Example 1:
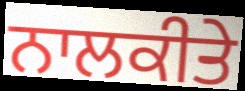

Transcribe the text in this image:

ਨਾਲਕੀਤੇ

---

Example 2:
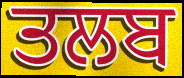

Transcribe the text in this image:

ਤਲਬ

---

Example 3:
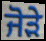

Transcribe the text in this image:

ਜੋੜੇ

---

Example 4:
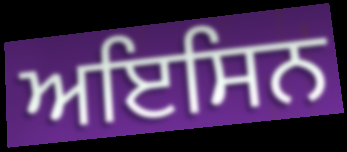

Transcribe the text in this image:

ਅਇਸਿਨ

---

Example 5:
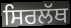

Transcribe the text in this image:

ਸਿਰਲੱਥ